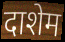
दाशेम